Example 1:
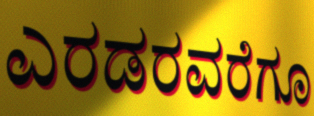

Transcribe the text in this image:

ಎರಡರವರೆಗೂ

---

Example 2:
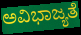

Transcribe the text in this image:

ಅವಿಭಾಜ್ಯತೆ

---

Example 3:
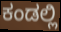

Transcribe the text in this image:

ಕಂಡಲ್ಲಿ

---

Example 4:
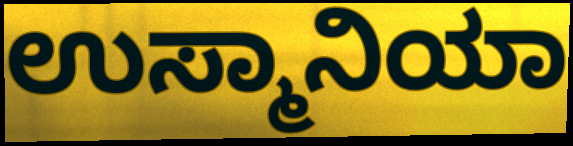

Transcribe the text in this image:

ಉಸ್ಮಾನಿಯಾ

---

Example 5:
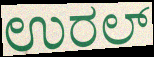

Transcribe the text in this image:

ಉರಲ್